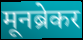
मूनब्रेकर